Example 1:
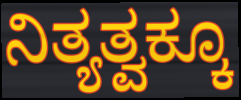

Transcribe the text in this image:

ನಿತ್ಯತ್ವಕ್ಕೂ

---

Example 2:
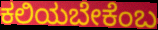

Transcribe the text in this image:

ಕಲಿಯಬೇಕೆಂಬ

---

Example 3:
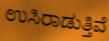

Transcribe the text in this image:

ಉಸಿರಾಡುತ್ತಿವೆ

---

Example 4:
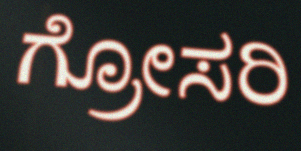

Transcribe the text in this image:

ಗ್ರೋಸರಿ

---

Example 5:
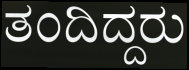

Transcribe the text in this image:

ತಂದಿದ್ದರು